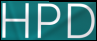
HPD